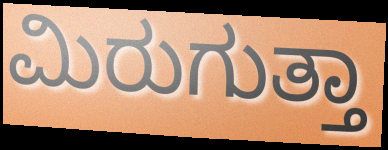
ಮಿರುಗುತ್ತಾ